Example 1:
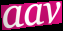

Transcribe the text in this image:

aav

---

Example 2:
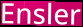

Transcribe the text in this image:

Ensler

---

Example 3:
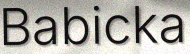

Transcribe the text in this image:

Babicka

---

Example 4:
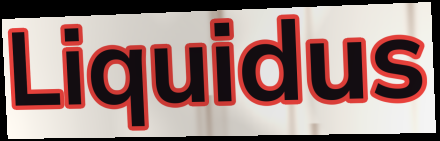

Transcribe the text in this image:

Liquidus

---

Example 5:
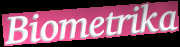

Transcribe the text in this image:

Biometrika